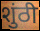
शुंठी